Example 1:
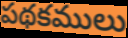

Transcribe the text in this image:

పథకములు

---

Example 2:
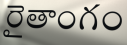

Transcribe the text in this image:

రైతాంగం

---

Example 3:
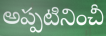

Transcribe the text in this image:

అప్పటినించీ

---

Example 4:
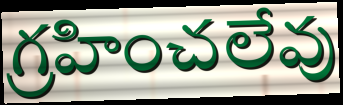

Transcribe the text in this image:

గ్రహించలేవు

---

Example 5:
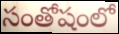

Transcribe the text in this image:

సంతోషంలో